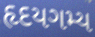
હૃદયગમ્ય